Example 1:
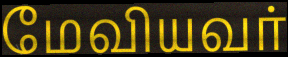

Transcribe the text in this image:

மேவியவர்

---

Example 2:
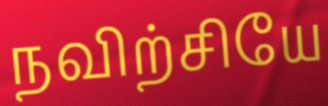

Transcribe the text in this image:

நவிற்சியே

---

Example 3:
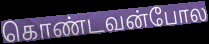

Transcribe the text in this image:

கொண்டவன்போல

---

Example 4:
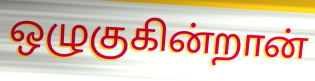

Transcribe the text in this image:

ஒழுகுகின்றான்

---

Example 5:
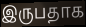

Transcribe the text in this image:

இருபதாக